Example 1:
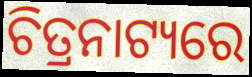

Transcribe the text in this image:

ଚିତ୍ରନାଟ୍ୟରେ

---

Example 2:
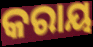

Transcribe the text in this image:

କରାୟ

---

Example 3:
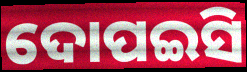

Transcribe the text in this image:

ଦୋପଇସି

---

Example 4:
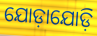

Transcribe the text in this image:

ଯୋଡ଼ାଯୋଡ଼ି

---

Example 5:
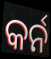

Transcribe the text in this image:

କର୍ନ